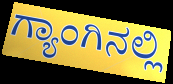
ಗ್ಯಾಂಗಿನಲ್ಲಿ